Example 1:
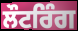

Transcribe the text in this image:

ਲੌਟਰਿੰਗ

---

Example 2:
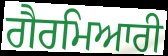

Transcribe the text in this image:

ਗੈਰਮਿਆਰੀ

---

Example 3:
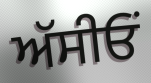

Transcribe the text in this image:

ਅੱਸੀਓਂ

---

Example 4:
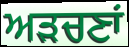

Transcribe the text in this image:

ਅੜਚਣਾਂ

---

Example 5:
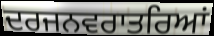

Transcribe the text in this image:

ਦਰਜਨਵਰਾਤਰਿਆਂ